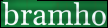
bramho